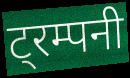
ट्रम्पनी